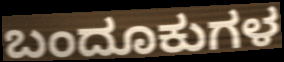
ಬಂದೂಕುಗಳ